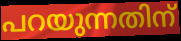
പറയുന്നതിന്